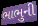
ભાભુની